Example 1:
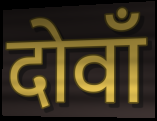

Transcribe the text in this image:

दोवाँ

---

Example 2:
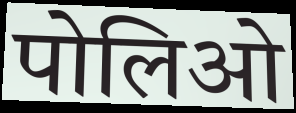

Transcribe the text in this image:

पोलिओ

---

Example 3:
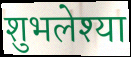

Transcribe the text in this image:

शुभलेश्या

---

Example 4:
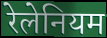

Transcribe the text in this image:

रेलेनियम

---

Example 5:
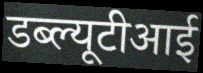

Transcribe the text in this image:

डब्ल्यूटीआई